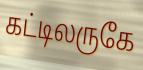
கட்டிலருகே